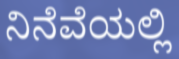
ನಿನೆವೆಯಲ್ಲಿ